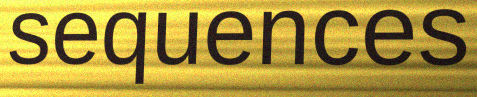
sequences